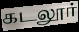
கடலூர்